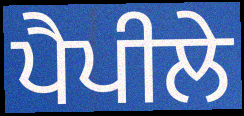
ਪੈਪੀਲੇ